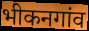
भीकनगांव